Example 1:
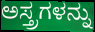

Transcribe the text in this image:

ಅಸ್ತ್ರಗಳನ್ನು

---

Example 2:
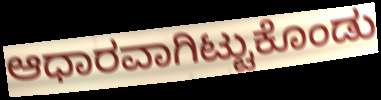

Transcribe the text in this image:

ಆಧಾರವಾಗಿಟ್ಟುಕೊಂಡು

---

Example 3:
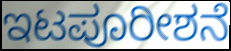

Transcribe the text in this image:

ಇಟಪೂರೀಶನೆ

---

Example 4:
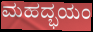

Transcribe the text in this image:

ಮಹದ್ಭಯಂ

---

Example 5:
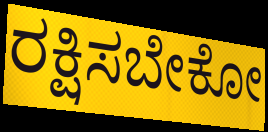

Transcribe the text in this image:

ರಕ್ಷಿಸಬೇಕೋ